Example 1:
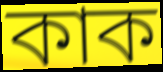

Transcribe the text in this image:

কাক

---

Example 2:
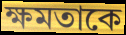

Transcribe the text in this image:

ক্ষমতাকে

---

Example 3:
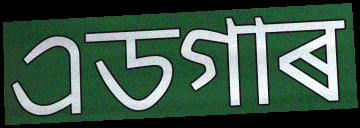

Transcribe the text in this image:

এডগাৰ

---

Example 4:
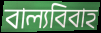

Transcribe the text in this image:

বাল্যবিবাহ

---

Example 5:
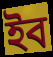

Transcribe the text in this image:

ইব